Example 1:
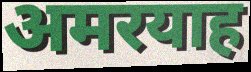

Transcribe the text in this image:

अमरयाह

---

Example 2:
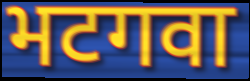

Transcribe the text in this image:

भटगवा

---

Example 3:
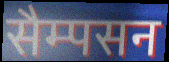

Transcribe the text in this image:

सैम्पसन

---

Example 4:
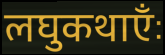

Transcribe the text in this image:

लघुकथाएँः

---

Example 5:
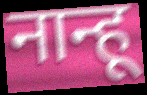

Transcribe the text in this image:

नान्हू